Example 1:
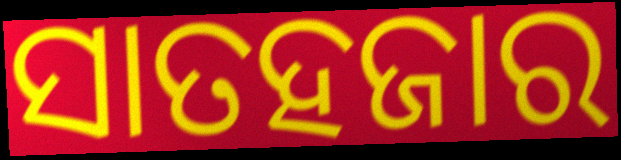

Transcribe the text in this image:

ସାତହଜାର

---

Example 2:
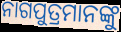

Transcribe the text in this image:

ନାଗପୁତ୍ରମାନଙ୍କୁ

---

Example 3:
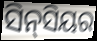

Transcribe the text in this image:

ସିନ୍‌ସିୟର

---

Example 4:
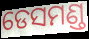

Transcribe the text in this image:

ଡେସମଣ୍ଡ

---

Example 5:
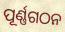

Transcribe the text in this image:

ପୂର୍ଣ୍ଣଗଠନ